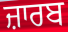
ਜ਼ਾਰਬ